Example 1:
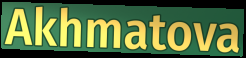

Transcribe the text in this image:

Akhmatova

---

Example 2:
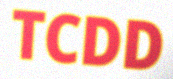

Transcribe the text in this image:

TCDD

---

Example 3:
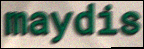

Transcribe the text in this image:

maydis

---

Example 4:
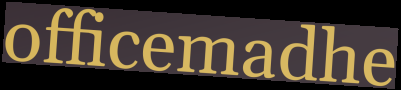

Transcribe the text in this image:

officemadhe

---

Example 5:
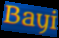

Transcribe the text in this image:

Bayi